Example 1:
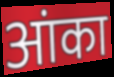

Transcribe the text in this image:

आंका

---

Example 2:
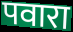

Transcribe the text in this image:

पवारा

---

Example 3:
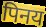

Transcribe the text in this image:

पिनय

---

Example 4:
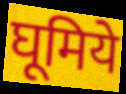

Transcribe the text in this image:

घूमिये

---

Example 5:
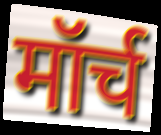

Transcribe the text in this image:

मॉर्च